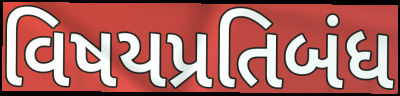
વિષયપ્રતિબંધ